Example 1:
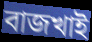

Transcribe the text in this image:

বাজখাই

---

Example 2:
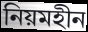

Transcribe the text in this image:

নিয়মহীন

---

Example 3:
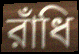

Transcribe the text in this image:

রাঁধি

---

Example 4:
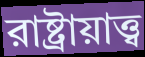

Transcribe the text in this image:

রাষ্ট্রায়াত্ত্ব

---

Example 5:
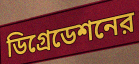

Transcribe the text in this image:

ডিগ্রেডেশনের